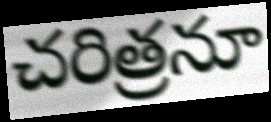
చరిత్రనూ